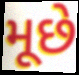
મૂછે